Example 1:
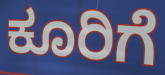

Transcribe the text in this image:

ಕೂರಿಗೆ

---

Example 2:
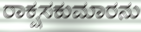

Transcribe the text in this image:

ರಾಕ್ಷಸಕುಮಾರನು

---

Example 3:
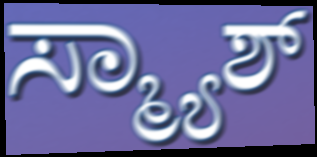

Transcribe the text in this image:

ಸ್ಮ್ಯಾಶ್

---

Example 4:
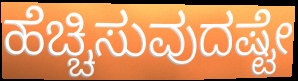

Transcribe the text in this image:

ಹೆಚ್ಚಿಸುವುದಷ್ಟೇ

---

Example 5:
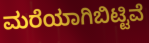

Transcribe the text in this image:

ಮರೆಯಾಗಿಬಿಟ್ಟಿವೆ